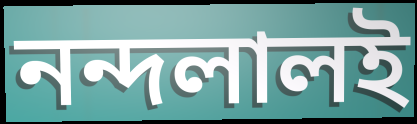
নন্দলালই